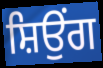
ਸ਼ਿਉਂਗ